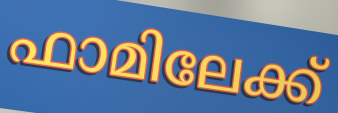
ഫാമിലേക്ക്